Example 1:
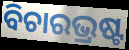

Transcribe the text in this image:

ବିଚାରଭ୍ରଷ୍ଟ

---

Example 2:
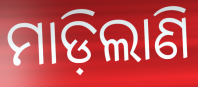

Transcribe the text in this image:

ମାଡ଼ିଲାଣି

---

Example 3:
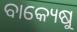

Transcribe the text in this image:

ବାକ୍ୟେଷୁ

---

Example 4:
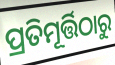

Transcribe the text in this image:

ପ୍ରତିମୂର୍ତ୍ତିଠାରୁ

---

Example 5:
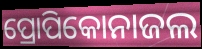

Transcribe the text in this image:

ପ୍ରୋପିକୋନାଜଲ